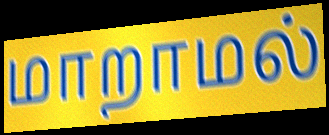
மாறாமல்